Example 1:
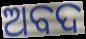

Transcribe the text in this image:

ଅବଦ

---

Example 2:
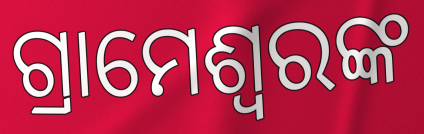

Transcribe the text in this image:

ଗ୍ରାମେଶ୍ୱରଙ୍କ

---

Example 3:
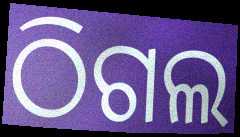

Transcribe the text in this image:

ଠିଗଲ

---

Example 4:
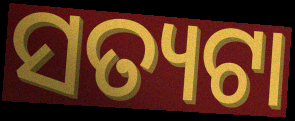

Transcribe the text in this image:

ସତ୍ୟଟା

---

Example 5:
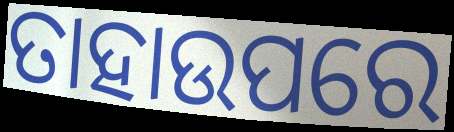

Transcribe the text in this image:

ତାହାଉପରେ